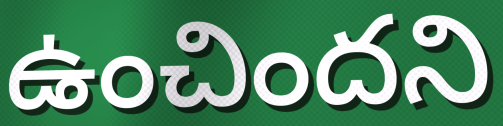
ఉంచిందని